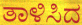
ತಾಳಿಸಿದ